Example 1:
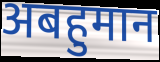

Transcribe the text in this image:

अबहुमान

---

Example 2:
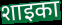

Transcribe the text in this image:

शाइका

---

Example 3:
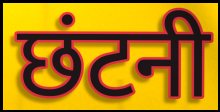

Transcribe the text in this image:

छंटनी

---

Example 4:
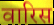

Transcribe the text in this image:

वारिस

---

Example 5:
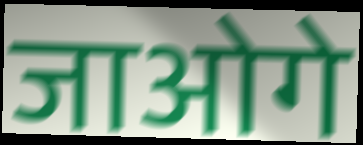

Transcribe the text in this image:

जाओगे